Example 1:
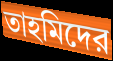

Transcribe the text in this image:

তাহমিদের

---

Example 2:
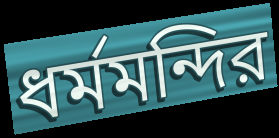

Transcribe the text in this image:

ধর্মমন্দির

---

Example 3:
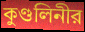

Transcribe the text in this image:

কুণ্ডলিনীর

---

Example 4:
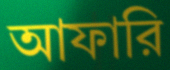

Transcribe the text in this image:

আফারি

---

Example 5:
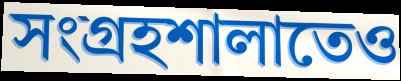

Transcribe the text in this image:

সংগ্রহশালাতেও